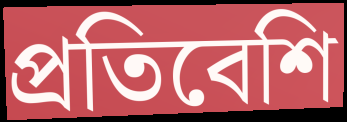
প্রতিবেশি